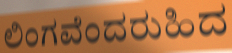
ಲಿಂಗವೆಂದರುಹಿದ